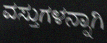
ವಸ್ತುಗಳನ್ನಾಗಿ